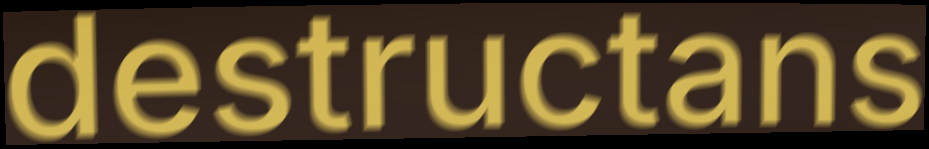
destructans